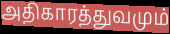
அதிகாரத்துவமும்